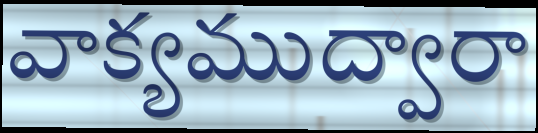
వాక్యముద్వారా